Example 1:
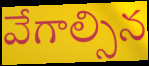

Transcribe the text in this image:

వేగాల్సిన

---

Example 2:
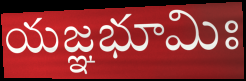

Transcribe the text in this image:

యజ్ఞభూమిః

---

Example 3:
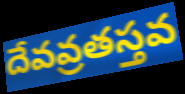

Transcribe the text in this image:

దేవవ్రతస్తవ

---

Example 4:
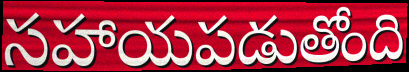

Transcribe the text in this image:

సహాయపడుతోంది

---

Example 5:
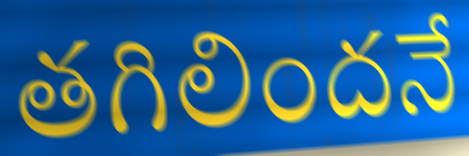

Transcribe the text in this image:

తగిలిందనే